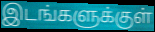
இடங்களுக்குள்